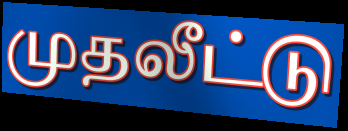
முதலீட்டு